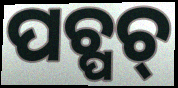
ପଚ୍ପଚ୍